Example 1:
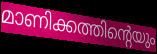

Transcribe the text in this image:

മാണിക്കത്തിന്റെയും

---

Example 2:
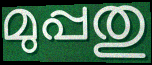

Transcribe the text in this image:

മുപ്പതു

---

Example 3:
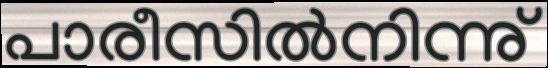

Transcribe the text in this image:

പാരീസിൽനിന്നു്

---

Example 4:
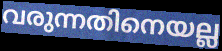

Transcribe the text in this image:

വരുന്നതിനെയല്ല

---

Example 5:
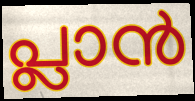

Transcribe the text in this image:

പ്ലാൻ